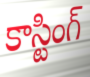
కాస్టింగ్